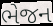
ભેજન